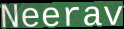
Neerav